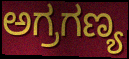
ಅಗ್ರಗಣ್ಯ